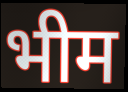
भीम